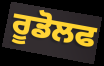
ਰੂਡੋਲਫ